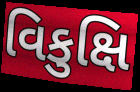
વિકુક્ષિ